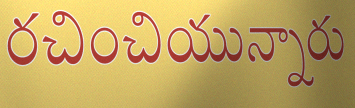
రచించియున్నారు